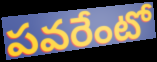
పవరేంటో